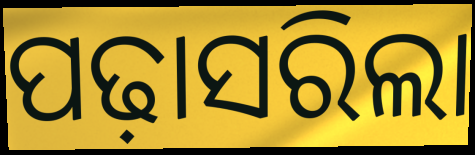
ପଢ଼ାସରିଲା